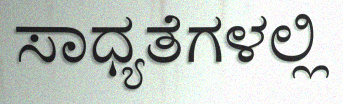
ಸಾಧ್ಯತೆಗಳಲ್ಲಿ